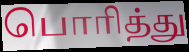
பொரித்து